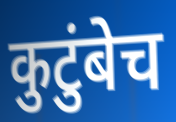
कुटुंबेच